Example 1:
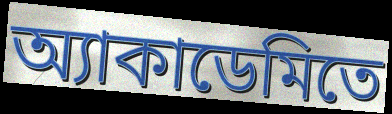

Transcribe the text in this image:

অ্যাকাডেমিতে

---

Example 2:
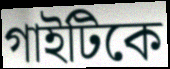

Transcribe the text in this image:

গাইটিকে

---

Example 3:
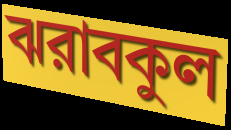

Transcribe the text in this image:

ঝরাবকুল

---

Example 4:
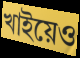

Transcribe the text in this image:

খাইয়েও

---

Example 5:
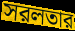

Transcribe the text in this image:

সরলতার